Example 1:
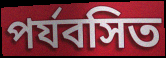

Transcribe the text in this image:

পৰ্যবসিত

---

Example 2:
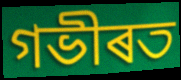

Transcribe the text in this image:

গভীৰত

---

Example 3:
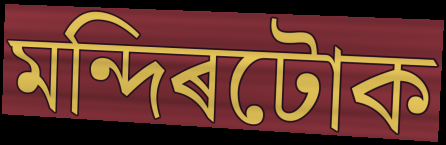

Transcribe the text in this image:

মন্দিৰটোক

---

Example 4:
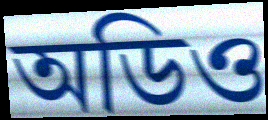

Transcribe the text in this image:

অডিও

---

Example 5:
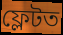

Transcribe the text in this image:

ফ্লেটত